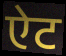
ऐट